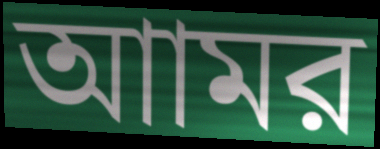
আামর